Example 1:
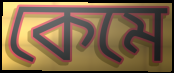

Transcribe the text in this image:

কেমে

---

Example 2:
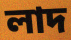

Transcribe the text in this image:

লাদ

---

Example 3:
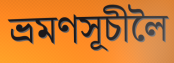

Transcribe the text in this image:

ভ্ৰমণসূচীলৈ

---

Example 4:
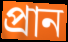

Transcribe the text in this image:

প্ৰান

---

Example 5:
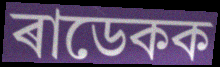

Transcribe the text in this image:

ৰাডেকক